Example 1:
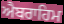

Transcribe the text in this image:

ਐਬਰਾਹਿਮ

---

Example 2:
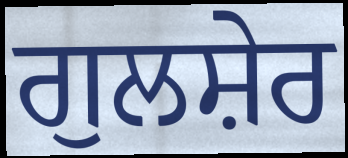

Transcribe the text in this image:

ਗੁਲਸ਼ੇਰ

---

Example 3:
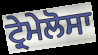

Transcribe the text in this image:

ਟ੍ਰੇਮੇਲੋਸਾ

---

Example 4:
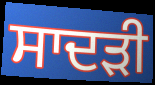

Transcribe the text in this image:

ਸਾਦੜੀ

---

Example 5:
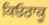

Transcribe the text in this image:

ਕਿਓਰਾਕੂ